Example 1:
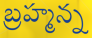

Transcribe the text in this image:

బ్రహ్మన్న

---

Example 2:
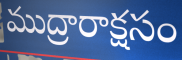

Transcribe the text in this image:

ముద్రారాక్షసం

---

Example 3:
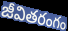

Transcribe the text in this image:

జీవితరంగం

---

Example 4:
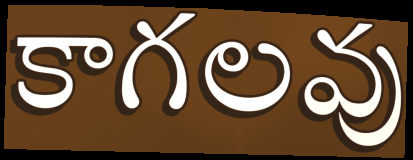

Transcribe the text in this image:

కాగలవు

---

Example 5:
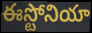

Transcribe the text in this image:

ఈస్టోనియా